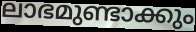
ലാഭമുണ്ടാക്കും